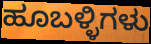
ಹೂಬಳ್ಳಿಗಳು